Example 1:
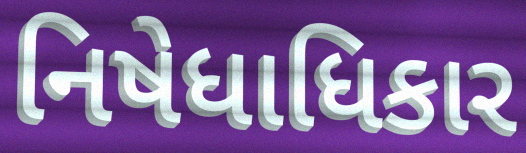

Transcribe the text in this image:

નિષેધાધિકાર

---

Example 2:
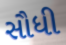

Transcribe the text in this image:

સૌધી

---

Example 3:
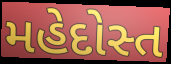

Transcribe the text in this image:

મહેદોસ્ત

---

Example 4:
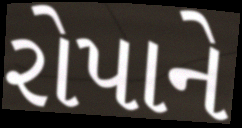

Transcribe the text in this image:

રોપાને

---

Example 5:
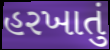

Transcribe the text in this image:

હરખાતું